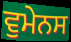
ਵੁਮੇਨਸ